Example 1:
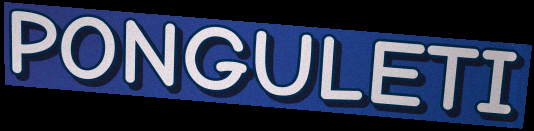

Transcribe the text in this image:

PONGULETI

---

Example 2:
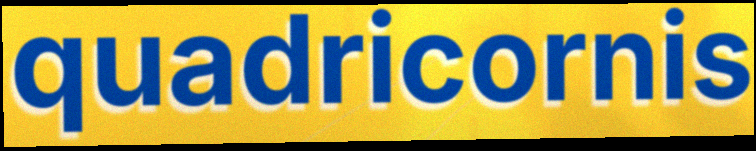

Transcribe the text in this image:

quadricornis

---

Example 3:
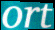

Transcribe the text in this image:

ort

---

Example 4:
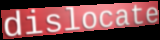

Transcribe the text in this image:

dislocate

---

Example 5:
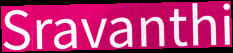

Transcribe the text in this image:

Sravanthi